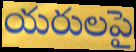
యరులపై